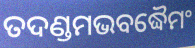
ତଦଣ୍ଡମଭବଦ୍ଧୈମଂ